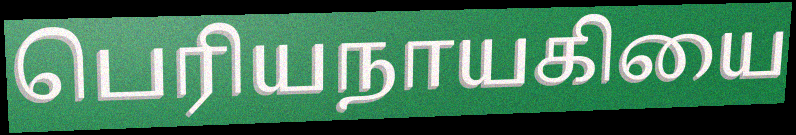
பெரியநாயகியை